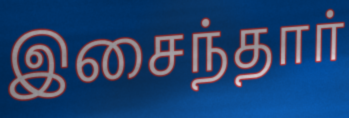
இசைந்தார்